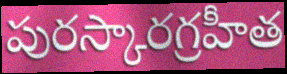
పురస్కారగ్రహీత